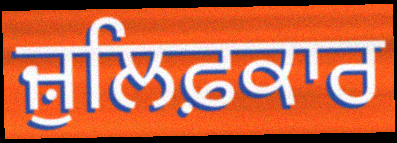
ਜ਼ੁਲਿਫ਼ਕਾਰ